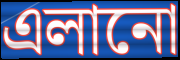
এলানো